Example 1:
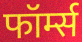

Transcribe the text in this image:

फॉर्म्स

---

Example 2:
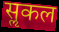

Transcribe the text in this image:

सॢकल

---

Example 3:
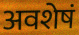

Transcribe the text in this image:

अवशेषं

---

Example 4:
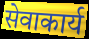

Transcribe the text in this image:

सेवाकार्य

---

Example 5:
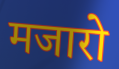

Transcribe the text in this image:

मजारो